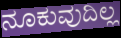
ನೂಕುವುದಿಲ್ಲ